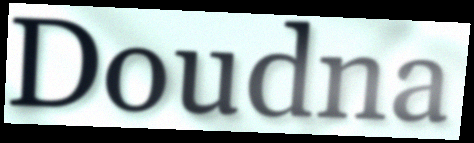
Doudna